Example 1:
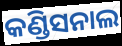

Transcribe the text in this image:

କଣ୍ଡିସନାଲ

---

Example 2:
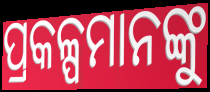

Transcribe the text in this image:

ପ୍ରକଳ୍ପମାନଙ୍କୁ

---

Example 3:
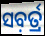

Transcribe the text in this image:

ସବ଼ର୍ତ୍ର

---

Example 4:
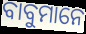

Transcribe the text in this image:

ବାବୁମାନେ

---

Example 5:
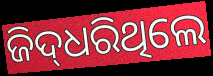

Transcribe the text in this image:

ଜିଦ୍‌ଧରିଥିଲେ